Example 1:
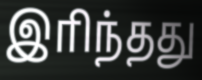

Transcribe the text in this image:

இரிந்தது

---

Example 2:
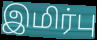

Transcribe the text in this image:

இமிர்பு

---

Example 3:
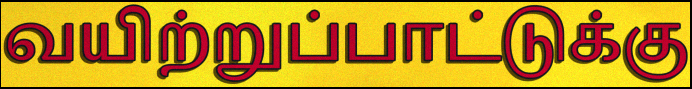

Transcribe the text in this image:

வயிற்றுப்பாட்டுக்கு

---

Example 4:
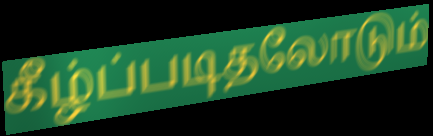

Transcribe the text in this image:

கீழ்ப்படிதலோடும்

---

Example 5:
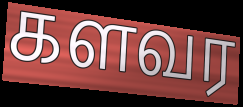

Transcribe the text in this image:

களவர